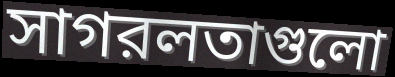
সাগরলতাগুলো